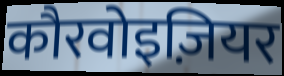
कौरवोइज़ियर